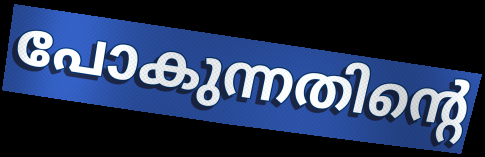
പോകുന്നതിന്റെ